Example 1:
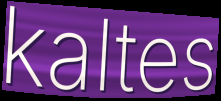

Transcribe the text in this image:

kaltes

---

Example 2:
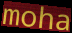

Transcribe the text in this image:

moha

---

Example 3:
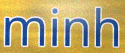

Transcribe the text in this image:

minh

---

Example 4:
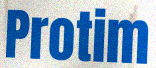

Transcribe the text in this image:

Protim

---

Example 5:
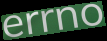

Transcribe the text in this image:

errno